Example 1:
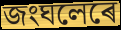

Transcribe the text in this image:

জংঘলেৰে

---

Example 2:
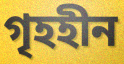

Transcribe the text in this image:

গৃহহীন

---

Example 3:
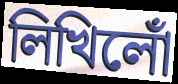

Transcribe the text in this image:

লিখিলোঁ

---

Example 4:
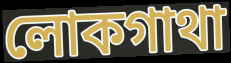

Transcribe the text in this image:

লোকগাথা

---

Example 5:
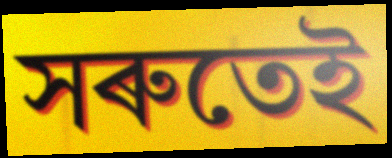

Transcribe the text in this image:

সৰুতেই